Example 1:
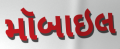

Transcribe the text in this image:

મૉબાઇલ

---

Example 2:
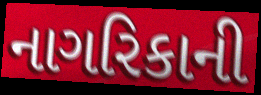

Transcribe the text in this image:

નાગરિકાની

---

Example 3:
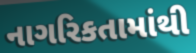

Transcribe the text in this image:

નાગરિકતામાંથી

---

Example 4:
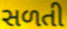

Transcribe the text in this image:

સળતી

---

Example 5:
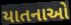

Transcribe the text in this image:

યાતનાઓ